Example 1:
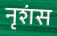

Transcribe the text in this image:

नृशंस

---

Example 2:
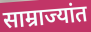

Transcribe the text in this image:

साम्राज्यांत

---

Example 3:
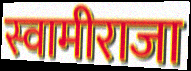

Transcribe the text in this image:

स्वामीराजा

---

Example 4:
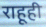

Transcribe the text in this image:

राहूही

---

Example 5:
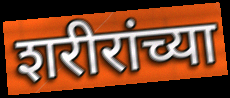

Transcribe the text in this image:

शरीरांच्या